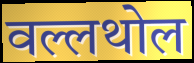
वल्लथोल